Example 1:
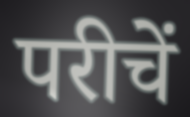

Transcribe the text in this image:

परीचें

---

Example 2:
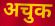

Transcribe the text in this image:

अचुक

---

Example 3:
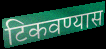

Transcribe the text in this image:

टिकवण्यास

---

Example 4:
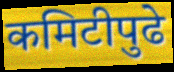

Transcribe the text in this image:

कमिटीपुढे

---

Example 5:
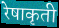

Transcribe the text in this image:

रेषाकृती